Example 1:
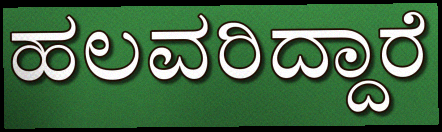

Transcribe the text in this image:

ಹಲವರಿದ್ದಾರೆ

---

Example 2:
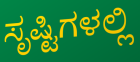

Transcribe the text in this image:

ಸೃಷ್ಟಿಗಳಲ್ಲಿ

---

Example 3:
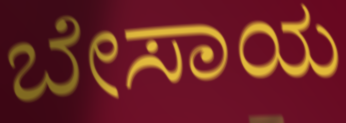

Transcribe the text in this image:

ಬೇಸಾಯ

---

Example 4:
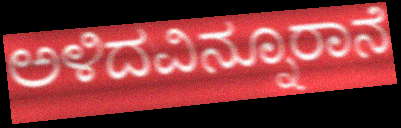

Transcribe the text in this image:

ಅಳಿದವಿನ್ನೂರಾನೆ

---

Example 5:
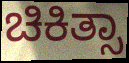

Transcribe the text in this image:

ಚಿಕಿತ್ಸಾ